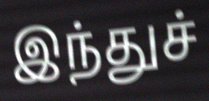
இந்துச்